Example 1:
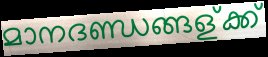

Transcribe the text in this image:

മാനദണ്ഡങ്ങള്ക്ക്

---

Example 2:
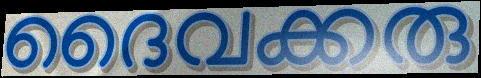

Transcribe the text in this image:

ദൈവക്കരു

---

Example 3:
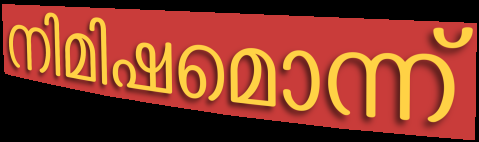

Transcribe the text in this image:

നിമിഷമൊന്ന്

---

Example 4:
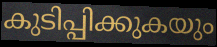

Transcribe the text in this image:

കുടിപ്പിക്കുകയും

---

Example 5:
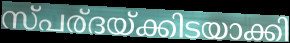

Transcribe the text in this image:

സ്പര്ദയ്ക്കിടയാക്കി